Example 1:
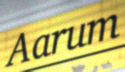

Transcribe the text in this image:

Aarum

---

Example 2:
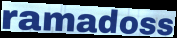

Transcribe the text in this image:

ramadoss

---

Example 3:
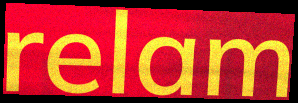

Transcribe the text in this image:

relam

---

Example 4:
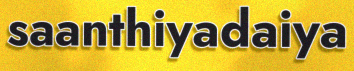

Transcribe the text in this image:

saanthiyadaiya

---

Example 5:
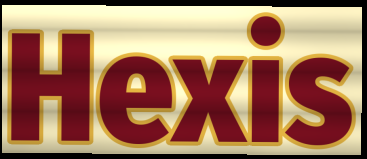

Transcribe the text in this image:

Hexis